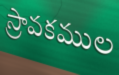
స్రావకముల